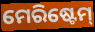
ମେରିଷ୍ଟେମ୍